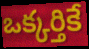
ఒక్కర్తికే